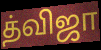
த்விஜா